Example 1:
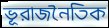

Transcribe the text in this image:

ভূরাজনৈতিক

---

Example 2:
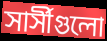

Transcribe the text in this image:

সার্সীগুলো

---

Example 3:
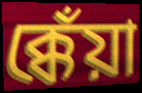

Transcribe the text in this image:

ক্কেঁয়া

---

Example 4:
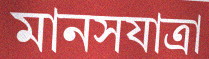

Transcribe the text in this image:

মানসযাত্রা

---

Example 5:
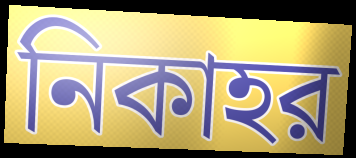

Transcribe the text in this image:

নিকাহর